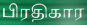
பிரதிகார